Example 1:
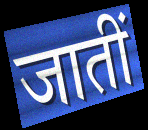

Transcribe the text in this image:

जातीं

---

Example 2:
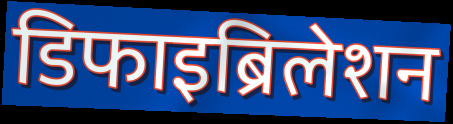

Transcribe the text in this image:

डिफाइब्रिलेशन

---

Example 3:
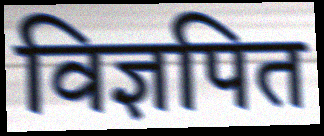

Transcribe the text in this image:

विज्ञपित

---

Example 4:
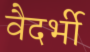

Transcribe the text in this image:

वैदर्भी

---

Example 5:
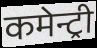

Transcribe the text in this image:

कमेन्ट्री